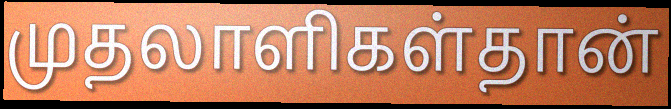
முதலாளிகள்தான்